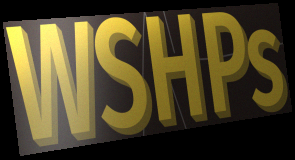
WSHPs